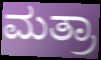
ಮತ್ರಾ